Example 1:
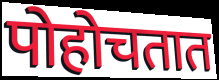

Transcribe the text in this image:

पोहोचतात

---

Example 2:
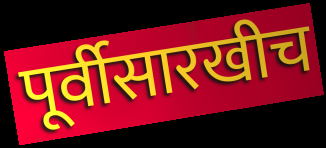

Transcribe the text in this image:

पूर्वीसारखीच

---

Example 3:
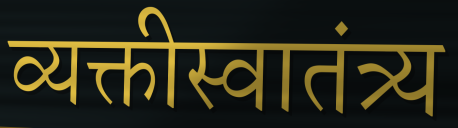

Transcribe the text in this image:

व्यक्तीस्वातंत्र्य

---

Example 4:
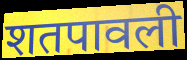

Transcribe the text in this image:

शतपावली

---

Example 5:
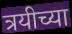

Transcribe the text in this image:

त्रयीच्या